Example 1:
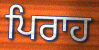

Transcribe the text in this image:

ਪਿਰਾਹ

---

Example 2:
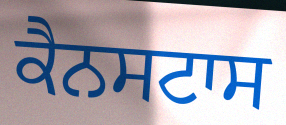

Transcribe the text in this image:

ਕੈਨਸਟਾਸ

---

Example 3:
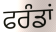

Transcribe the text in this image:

ਫਰੰਡਾਂ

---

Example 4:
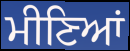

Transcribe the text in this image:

ਮੀਣਿਆਂ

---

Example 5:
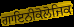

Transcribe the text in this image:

ਗਾਇਨੀਕੋਲੋਜਿਕ